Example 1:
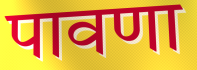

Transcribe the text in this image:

पावणा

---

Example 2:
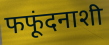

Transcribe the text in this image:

फफूंदनाशी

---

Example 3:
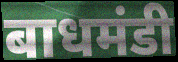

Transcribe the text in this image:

बाधमंडी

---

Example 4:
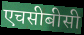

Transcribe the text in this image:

एचसीबीसी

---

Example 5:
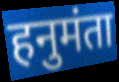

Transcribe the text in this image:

हनुमंता